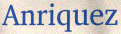
Anriquez